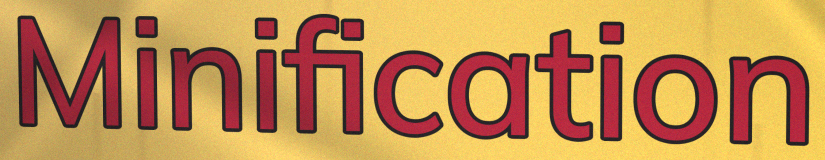
Minification